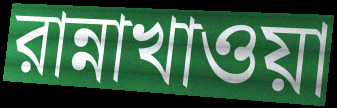
রান্নাখাওয়া